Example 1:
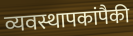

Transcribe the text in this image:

व्यवस्थापकांपैकी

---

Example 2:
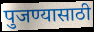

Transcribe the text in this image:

पुजण्यासाठी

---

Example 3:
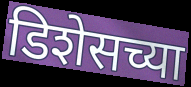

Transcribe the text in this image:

डिशेसच्या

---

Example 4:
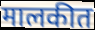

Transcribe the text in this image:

मालकीत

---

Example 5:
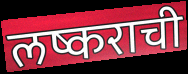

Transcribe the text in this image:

लष्कराची